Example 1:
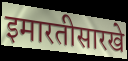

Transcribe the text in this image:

इमारतीसारखे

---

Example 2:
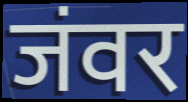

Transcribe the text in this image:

जंवर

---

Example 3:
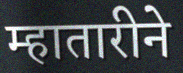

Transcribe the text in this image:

म्हातारीने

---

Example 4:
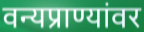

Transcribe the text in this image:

वन्यप्राण्यांवर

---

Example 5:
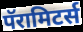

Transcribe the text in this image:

पॅरामिटर्स